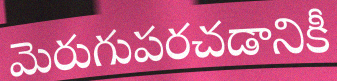
మెరుగుపరచడానికీ